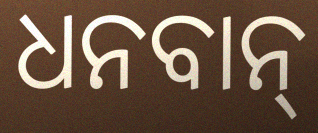
ଧନବାନ୍